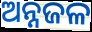
ଅନ୍ନଜଳ